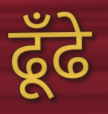
ढूँढे